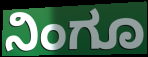
ನಿಂಗೂ